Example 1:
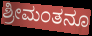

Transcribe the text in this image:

ಶ್ರೀಮಂತನೂ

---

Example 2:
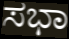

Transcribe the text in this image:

ಸಭಾ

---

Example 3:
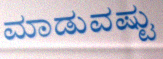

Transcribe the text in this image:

ಮಾಡುವಷ್ಟು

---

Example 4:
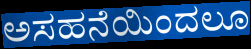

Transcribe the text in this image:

ಅಸಹನೆಯಿಂದಲೂ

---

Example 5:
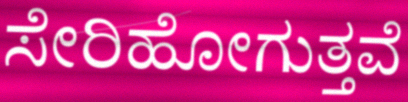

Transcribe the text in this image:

ಸೇರಿಹೋಗುತ್ತವೆ